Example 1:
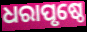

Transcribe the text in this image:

ଧରାପୃଷ୍ଠେ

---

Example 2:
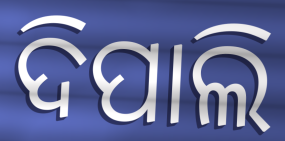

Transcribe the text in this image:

ଦିପାଲି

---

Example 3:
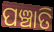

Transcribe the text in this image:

ପଞ୍ଚାତି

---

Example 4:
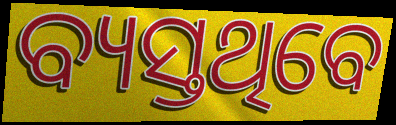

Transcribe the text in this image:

ବ୍ୟସ୍ତଥିବେ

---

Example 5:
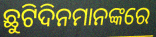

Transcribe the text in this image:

ଛୁଟିଦିନମାନଙ୍କରେ